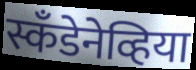
स्कॅंडेनेव्हिया